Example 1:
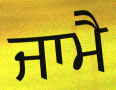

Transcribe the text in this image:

ਜਾਮੈ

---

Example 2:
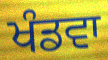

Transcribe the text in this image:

ਖੰਡਵਾ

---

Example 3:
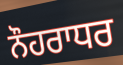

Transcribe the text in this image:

ਨੌਹਰਾਧਰ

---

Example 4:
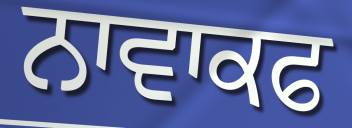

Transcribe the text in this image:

ਨਾਵਾਕਫ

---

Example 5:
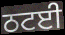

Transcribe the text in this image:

ਠਟਈ